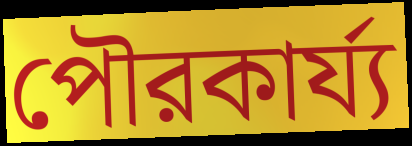
পৌরকার্য্য